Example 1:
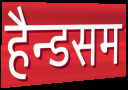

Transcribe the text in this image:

हैन्डसम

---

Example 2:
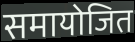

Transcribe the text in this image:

समायोजित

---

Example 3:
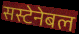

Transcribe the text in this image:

सस्टेनेबल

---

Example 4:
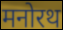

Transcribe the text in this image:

मनोरथ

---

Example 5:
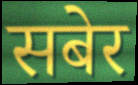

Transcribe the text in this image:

सबेर